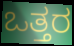
ಒತ್ತರ